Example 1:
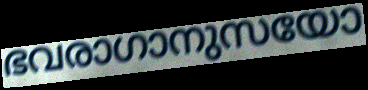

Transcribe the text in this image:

ഭവരാഗാനുസയോ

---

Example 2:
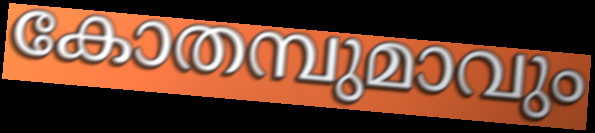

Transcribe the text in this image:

കോതമ്പുമാവും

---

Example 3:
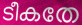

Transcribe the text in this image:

ടീകതേ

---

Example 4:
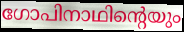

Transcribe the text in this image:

ഗോപിനാഥിന്റെയും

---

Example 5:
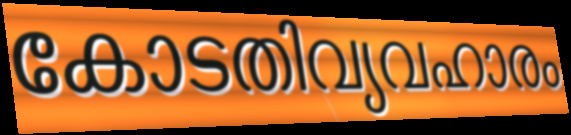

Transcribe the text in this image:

കോടതിവ്യവഹാരം